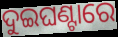
ଦୁଇଘଣ୍ଟାରେ